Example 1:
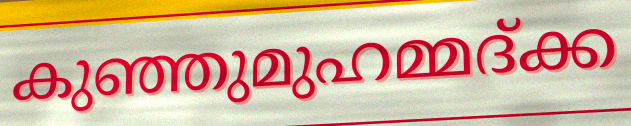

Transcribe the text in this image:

കുഞ്ഞുമുഹമ്മദ്ക്ക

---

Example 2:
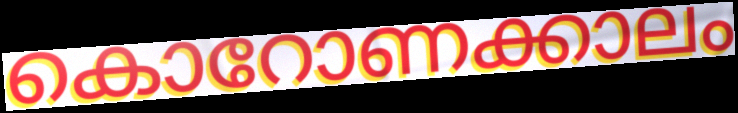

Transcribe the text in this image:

കൊറോണക്കാലം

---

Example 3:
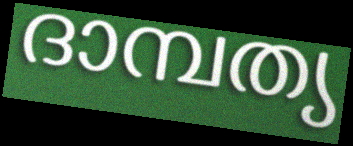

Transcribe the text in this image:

ദാമ്പത്യ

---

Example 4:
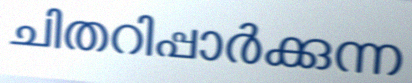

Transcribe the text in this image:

ചിതറിപ്പാർക്കുന്ന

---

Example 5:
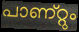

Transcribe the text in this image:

പാണ്റ്റും